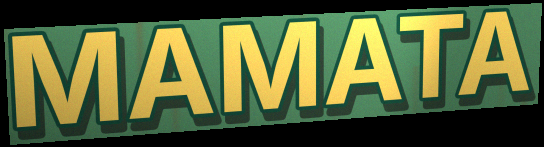
MAMATA